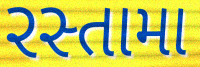
રસ્તામા